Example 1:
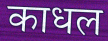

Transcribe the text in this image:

काधल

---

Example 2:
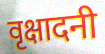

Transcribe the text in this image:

वृक्षादनी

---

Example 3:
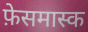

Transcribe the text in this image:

फ़ेसमास्क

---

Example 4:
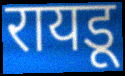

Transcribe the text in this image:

रायडू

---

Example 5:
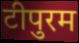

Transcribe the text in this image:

टीपुरम